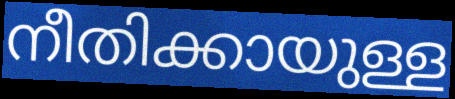
നീതിക്കായുള്ള